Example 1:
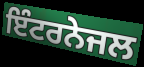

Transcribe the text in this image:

ਇੰਟਰਨੇਜਲ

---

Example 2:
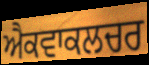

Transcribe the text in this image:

ਐਕਵਾਕਲਚਰ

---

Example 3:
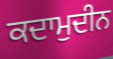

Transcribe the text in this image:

ਕਦਾਮੁਦੀਨ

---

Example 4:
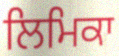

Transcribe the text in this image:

ਲਿਮਿਕਾ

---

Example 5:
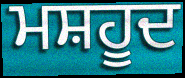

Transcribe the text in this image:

ਮਸ਼ਹੂਦ